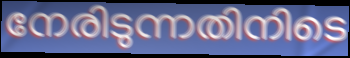
നേരിടുന്നതിനിടെ